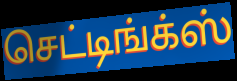
செட்டிங்க்ஸ்